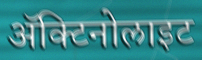
ॲक्टिनोलाइट